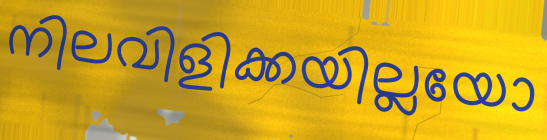
നിലവിളിക്കയില്ലയോ